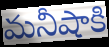
మనీషాకి